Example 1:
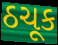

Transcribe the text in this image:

ઠચૂક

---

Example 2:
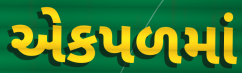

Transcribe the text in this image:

એકપળમાં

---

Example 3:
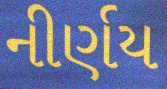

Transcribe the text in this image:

નીર્ણય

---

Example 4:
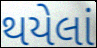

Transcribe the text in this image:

થયેલાં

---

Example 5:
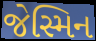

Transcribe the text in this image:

જેસ્મિન